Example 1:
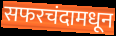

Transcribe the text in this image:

सफरचंदामधून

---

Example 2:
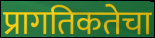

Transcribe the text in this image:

प्रागतिकतेचा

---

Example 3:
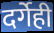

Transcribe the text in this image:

दर्गेही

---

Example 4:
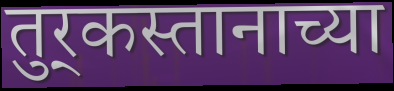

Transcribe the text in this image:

तुर्कस्तानाच्या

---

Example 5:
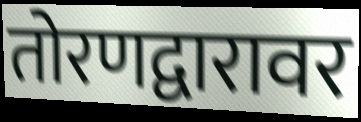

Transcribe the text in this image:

तोरणद्वारावर